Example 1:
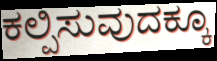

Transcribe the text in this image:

ಕಲ್ಪಿಸುವುದಕ್ಕೂ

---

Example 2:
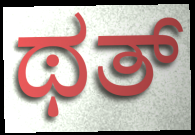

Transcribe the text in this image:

ಥತ್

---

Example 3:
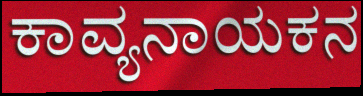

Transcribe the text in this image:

ಕಾವ್ಯನಾಯಕನ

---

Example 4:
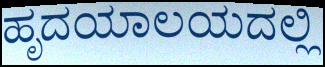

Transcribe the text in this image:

ಹೃದಯಾಲಯದಲ್ಲಿ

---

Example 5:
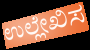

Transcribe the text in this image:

ಉಲ್ಲೇಖಿಸ